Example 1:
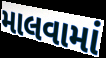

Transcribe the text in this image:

માલવામાં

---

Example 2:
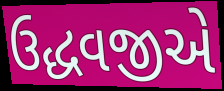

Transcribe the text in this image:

ઉદ્ધવજીએ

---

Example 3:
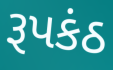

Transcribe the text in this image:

રૂપકંઠ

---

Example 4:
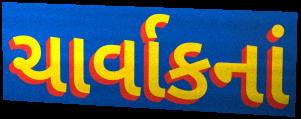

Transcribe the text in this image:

ચાર્વાકનાં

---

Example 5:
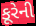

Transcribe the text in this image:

કૂરેની